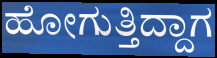
ಹೋಗುತ್ತಿದ್ದಾಗ